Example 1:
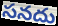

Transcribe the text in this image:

సనదు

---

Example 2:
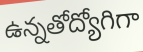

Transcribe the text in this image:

ఉన్నతోద్యోగిగా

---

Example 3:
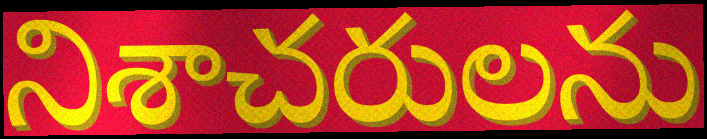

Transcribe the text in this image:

నిశాచరులను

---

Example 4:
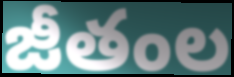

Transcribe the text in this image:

జీతంల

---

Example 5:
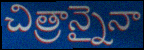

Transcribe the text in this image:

చిత్రాన్నైనా